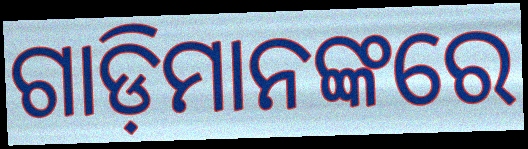
ଗାଡ଼ିମାନଙ୍କରେ